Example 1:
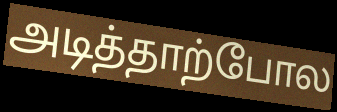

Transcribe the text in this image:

அடித்தாற்போல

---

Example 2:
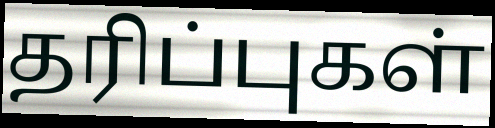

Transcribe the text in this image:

தரிப்புகள்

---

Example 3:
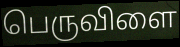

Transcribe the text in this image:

பெருவிளை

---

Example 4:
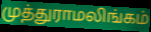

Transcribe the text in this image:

முத்துராமலிங்கம்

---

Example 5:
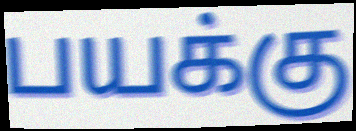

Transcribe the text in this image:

பயக்கு